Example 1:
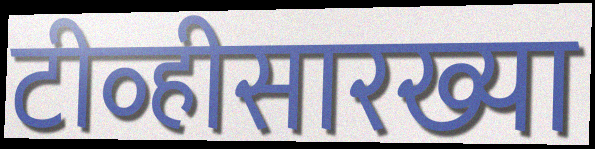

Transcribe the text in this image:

टीव्हीसारख्या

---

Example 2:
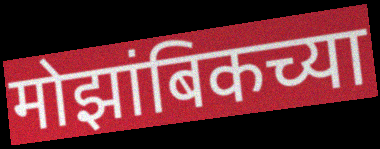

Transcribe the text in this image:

मोझांबिकच्या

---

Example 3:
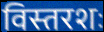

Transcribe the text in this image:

विस्तरशः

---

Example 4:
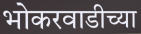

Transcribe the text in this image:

भोकरवाडीच्या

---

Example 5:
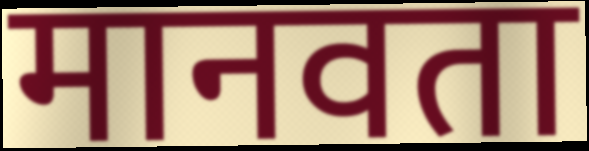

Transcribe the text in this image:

मानवता